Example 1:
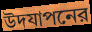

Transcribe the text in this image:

উদযাপনের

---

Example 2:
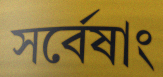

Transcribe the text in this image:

সর্বেষাং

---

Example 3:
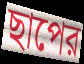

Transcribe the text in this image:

ছাপের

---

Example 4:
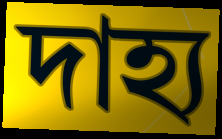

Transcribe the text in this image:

দাহ্য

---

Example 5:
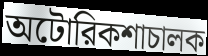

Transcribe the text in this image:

অটোরিকশাচালক